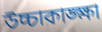
উচ্চাকাঙ্ক্ষা